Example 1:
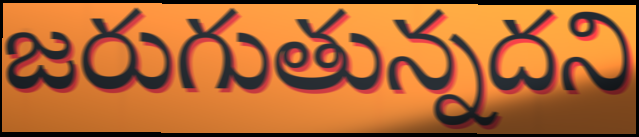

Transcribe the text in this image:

జరుగుతున్నదని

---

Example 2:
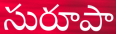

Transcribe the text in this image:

సురూపా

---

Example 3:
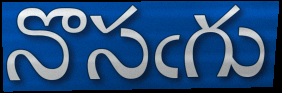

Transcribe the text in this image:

నొసఁగు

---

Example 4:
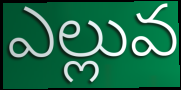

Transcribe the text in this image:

ఎల్లువ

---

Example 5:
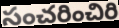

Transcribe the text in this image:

సంచరించిరి